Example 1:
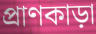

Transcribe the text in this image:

প্রাণকাড়া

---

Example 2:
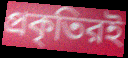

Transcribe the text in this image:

প্রকৃতিরই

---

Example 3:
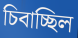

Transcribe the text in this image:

চিবাচ্ছিল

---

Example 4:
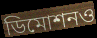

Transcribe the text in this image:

ডিমোশনও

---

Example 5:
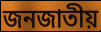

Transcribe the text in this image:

জনজাতীয়